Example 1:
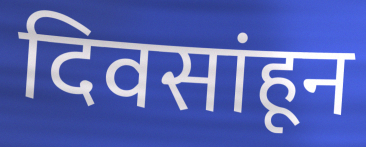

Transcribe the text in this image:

दिवसांहून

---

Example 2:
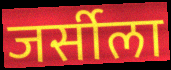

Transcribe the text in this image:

जर्सीला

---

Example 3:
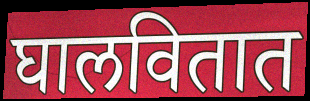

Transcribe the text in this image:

घालवितात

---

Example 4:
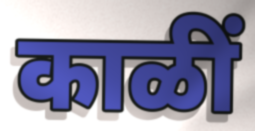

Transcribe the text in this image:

काळीं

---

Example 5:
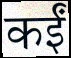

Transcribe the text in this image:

कईं